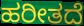
ಹರೀತದೆ